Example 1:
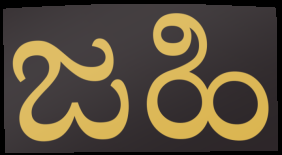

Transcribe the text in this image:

ಜಹಿ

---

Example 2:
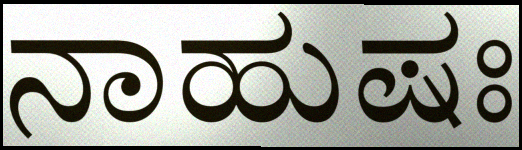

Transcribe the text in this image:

ನಾಹುಷಃ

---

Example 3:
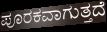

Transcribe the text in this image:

ಪೂರಕವಾಗುತ್ತದೆ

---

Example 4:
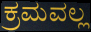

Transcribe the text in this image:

ಕ್ರಮವಲ್ಲ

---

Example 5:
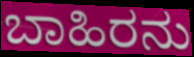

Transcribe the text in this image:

ಬಾಹಿರನು